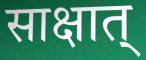
साक्षात्